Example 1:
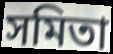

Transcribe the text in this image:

সমিতা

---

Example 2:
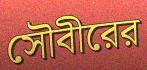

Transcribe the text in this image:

সৌবীরের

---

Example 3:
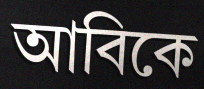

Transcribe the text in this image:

আবিকে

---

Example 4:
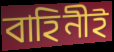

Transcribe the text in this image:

বাহিনীই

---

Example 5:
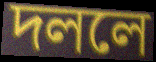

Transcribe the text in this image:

দললে